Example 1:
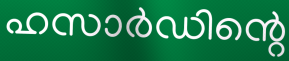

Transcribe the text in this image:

ഹസാർഡിന്റെ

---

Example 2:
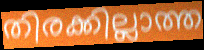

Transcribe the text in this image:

തിരക്കില്ലാത്ത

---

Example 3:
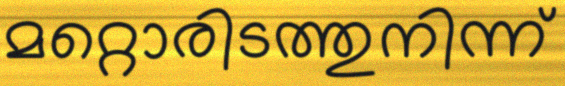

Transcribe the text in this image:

മറ്റൊരിടത്തുനിന്ന്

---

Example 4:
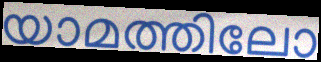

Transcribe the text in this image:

യാമത്തിലോ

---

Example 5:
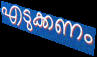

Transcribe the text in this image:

എടുക്കണം